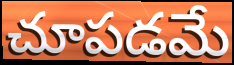
చూపడమే